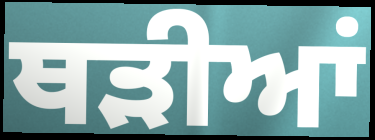
ਥੜੀਆਂ